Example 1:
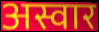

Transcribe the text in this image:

अस्वार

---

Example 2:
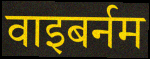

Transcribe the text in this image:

वाइबर्नम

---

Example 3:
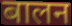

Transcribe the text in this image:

बालन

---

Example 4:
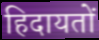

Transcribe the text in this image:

हिदायतों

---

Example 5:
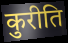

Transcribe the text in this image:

कुरीति